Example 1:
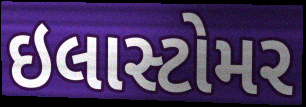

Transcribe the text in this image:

ઇલાસ્ટોમર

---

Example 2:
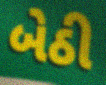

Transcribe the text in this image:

બેઠી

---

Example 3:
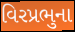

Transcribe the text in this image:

વિરપ્રભુના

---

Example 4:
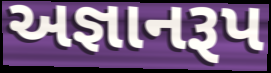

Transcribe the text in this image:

અજ્ઞાનરૂપ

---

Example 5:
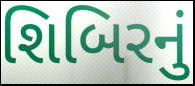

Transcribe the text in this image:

શિબિરનું